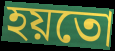
হয়তো